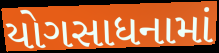
યોગસાધનામાં